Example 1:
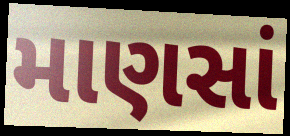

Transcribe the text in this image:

માણસાં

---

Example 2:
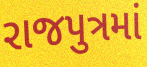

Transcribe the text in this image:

રાજપુત્રમાં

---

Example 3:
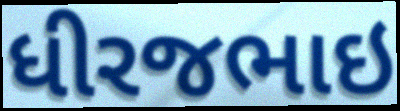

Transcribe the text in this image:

ધીરજભાઇ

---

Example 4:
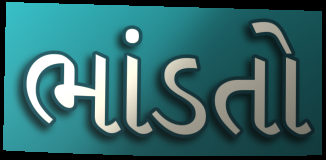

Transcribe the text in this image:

ભાંડતો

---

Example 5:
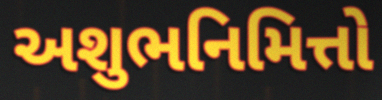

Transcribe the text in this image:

અશુભનિમિત્તો